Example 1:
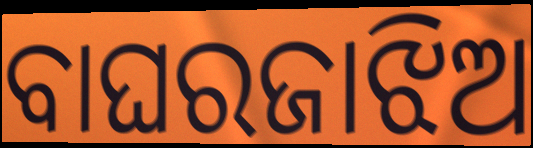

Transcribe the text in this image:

ବାଘରଜାଝିଅ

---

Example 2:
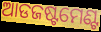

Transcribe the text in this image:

ଆଡଜଷ୍ଟମେଣ୍ଟ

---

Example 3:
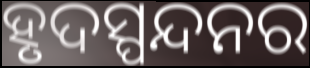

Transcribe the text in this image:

ହୃଦସ୍ପନ୍ଦନର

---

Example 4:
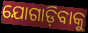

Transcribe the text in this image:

ଯୋଗାଡ଼ିବାକୁ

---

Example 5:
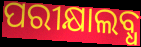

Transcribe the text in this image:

ପରୀକ୍ଷାଲବ୍ଧ